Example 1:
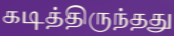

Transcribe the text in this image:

கடித்திருந்தது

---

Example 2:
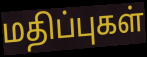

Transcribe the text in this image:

மதிப்புகள்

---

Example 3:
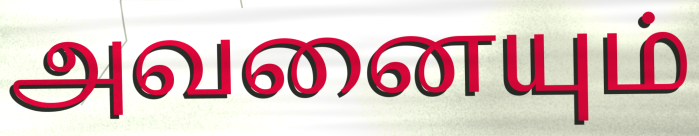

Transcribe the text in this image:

அவனையும்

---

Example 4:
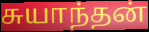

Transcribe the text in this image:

சுயாந்தன்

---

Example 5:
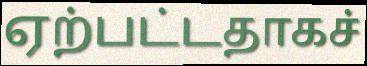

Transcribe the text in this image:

ஏற்பட்டதாகச்